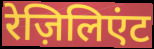
रेज़िलिएंट